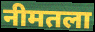
नीमतला